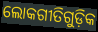
ଲୋକଗୀତିଗୁଡ଼ିକ